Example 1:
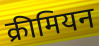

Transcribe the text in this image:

क्रीमियन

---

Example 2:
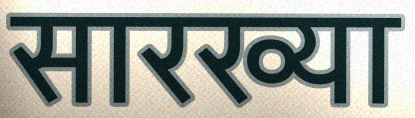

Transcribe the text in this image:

सारख्या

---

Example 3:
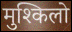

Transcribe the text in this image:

मुश्किलो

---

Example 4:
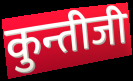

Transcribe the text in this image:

कुन्तीजी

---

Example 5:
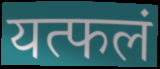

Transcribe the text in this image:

यत्फलं